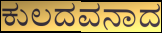
ಕುಲದವನಾದ